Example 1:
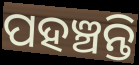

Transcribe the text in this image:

ପହଞ୍ଚନ୍ତି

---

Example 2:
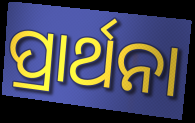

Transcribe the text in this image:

ପ୍ରାର୍ଥନା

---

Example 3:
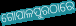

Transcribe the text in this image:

ଗୋପାଳପୁରଠାରେ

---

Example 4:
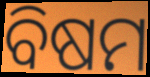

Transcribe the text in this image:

ବିଷମ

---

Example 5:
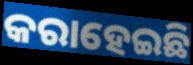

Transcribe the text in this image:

କରାହେଇଛି